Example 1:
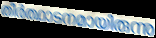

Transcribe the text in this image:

തീർത്ഥാടനമായിരുന്നു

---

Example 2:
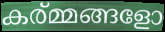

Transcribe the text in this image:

കര്മ്മങ്ങളോ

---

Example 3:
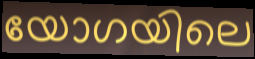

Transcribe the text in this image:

യോഗയിലെ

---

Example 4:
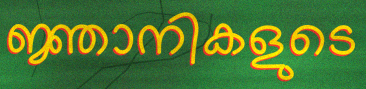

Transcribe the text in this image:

ജ്ഞാനികളുടെ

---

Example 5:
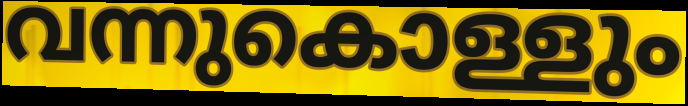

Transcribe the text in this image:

വന്നുകൊള്ളും